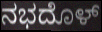
ನಭದೊಳ್